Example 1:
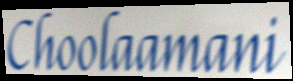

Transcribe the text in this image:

Choolaamani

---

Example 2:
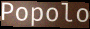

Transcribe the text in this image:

Popolo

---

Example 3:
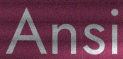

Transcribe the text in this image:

Ansi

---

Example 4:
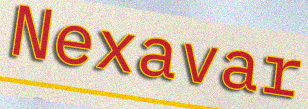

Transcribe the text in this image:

Nexavar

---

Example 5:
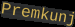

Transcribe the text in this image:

Premkunj